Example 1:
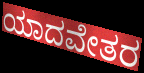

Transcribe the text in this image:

ಯಾದವೇತರ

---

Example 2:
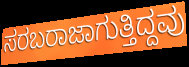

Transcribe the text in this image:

ಸರಬರಾಜಾಗುತ್ತಿದ್ದವು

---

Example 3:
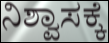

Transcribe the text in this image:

ನಿಶ್ವಾಸಕ್ಕೆ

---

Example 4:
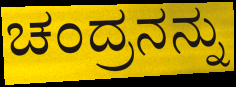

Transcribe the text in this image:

ಚಂದ್ರನನ್ನು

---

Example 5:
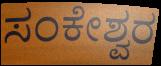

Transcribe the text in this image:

ಸಂಕೇಶ್ವರ